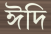
ঈদি